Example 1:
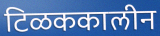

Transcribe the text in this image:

टिळककालीन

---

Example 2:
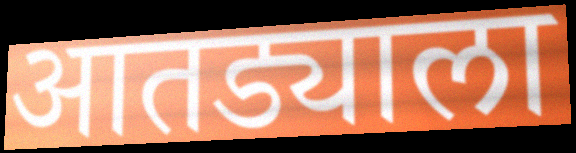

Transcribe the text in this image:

आतड्याला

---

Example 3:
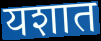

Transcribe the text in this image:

यशात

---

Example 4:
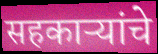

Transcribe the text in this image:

सहकाऱ्यांचे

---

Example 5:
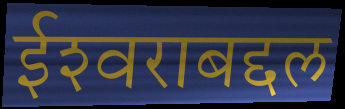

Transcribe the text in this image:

ईश्वराबद्दल